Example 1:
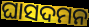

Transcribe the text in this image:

ଘାସଦମନ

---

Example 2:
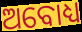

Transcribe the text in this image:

ଅବୋଧ୍ୟ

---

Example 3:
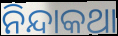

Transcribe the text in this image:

ନିନ୍ଦାକଥା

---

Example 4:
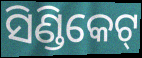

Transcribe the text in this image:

ସିଣ୍ଡିକେଟ୍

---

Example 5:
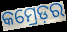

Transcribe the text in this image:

କମ୍ରେଡ଼ର